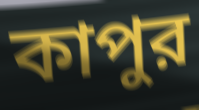
কাপুর